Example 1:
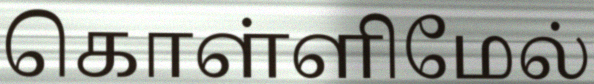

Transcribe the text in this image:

கொள்ளிமேல்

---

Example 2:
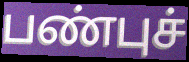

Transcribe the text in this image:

பண்புச்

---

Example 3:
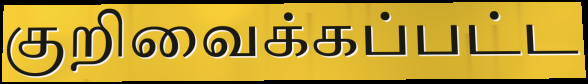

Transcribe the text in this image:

குறிவைக்கப்பட்ட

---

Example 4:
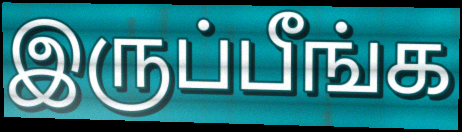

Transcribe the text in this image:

இருப்பீங்க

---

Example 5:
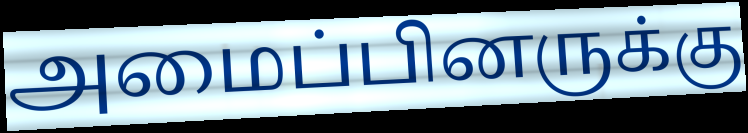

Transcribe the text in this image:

அமைப்பினருக்கு